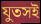
যুতসই